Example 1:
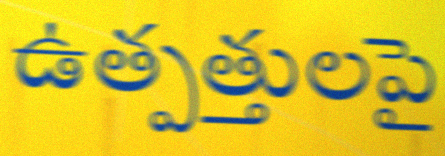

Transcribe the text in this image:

ఉత్పత్తులపై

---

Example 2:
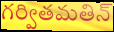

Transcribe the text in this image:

గర్వితమతిన్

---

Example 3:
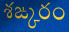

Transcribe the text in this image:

శఙ్కరం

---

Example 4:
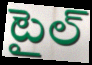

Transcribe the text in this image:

టైల్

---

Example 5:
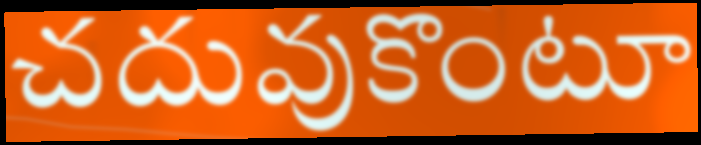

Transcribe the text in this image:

చదువుకొంటూ